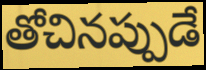
తోచినప్పుడే